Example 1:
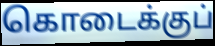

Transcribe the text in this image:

கொடைக்குப்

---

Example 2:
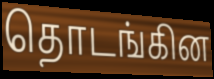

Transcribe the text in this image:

தொடங்கின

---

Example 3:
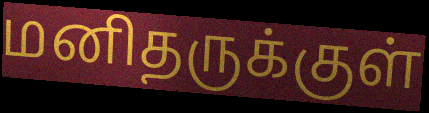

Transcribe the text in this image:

மனிதருக்குள்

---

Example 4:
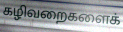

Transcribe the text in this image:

கழிவறைகளைக்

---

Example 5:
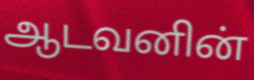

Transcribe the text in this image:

ஆடவனின்